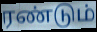
ரண்டும்